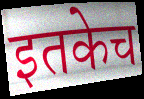
इतकेच